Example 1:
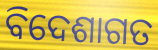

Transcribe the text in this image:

ବିଦେଶାଗତ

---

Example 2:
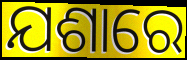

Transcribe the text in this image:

ଯଶାରେ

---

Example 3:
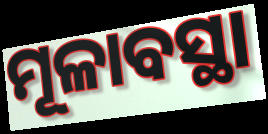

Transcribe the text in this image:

ମୂଳାବସ୍ଥା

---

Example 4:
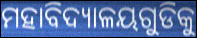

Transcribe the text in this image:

ମହାବିଦ୍ୟାଳୟଗୁଡିକୁ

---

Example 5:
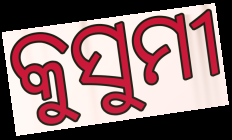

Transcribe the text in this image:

କୁସୁମୀ